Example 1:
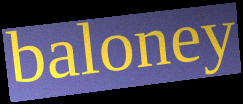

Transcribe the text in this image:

baloney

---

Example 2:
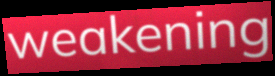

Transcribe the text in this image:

weakening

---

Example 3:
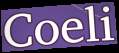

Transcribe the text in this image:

Coeli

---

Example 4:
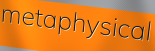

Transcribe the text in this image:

metaphysical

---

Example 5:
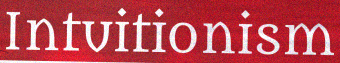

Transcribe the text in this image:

Intuitionism